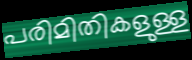
പരിമിതികളുള്ള